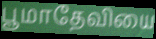
பூமாதேவியை